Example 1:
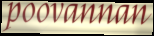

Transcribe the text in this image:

poovannan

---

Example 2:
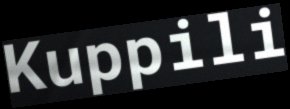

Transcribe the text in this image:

Kuppili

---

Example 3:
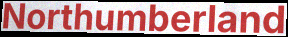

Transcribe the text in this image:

Northumberland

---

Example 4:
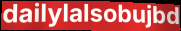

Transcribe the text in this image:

dailylalsobujbd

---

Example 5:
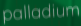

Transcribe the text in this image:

palladium